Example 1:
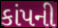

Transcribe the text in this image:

કાંપની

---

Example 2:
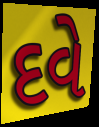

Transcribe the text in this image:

દવે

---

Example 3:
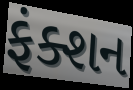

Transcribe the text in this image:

ફંક્શન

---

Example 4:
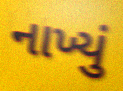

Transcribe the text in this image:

નાખ્યું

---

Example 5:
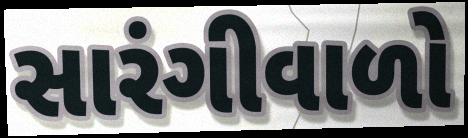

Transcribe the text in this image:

સારંગીવાળો